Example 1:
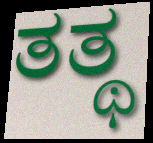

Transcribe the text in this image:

ತತ್ಥ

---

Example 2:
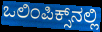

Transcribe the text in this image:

ಒಲಿಂಪಿಕ್ಸ್‌ನಲ್ಲಿ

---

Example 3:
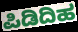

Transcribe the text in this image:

ಪಿಡಿದಿಹ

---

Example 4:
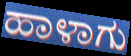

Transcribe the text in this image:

ಹಾಳಾಗು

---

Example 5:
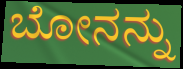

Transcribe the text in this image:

ಬೋನನ್ನು